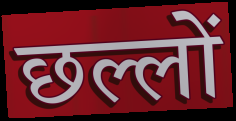
छल्लों